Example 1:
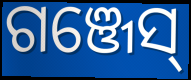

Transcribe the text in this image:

ଗଞ୍ଜେସ୍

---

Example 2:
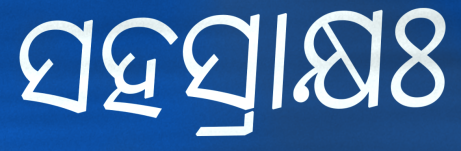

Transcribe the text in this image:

ସହସ୍ରାକ୍ଷଃ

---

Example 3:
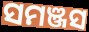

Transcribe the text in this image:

ସମଞ୍ଜସ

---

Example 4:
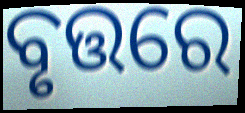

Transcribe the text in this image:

ବୃତ୍ତରେ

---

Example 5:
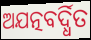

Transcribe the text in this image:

ଅଯତ୍ନବର୍ଦ୍ଧିତ